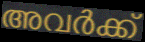
അവർക്ക്